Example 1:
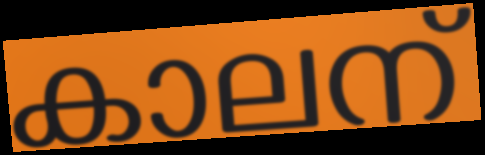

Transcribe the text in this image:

കാലന്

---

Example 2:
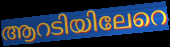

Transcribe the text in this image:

ആറടിയിലേറെ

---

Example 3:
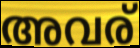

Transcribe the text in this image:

അവര്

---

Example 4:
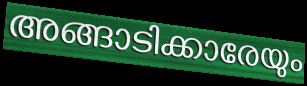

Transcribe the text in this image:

അങ്ങാടിക്കാരേയും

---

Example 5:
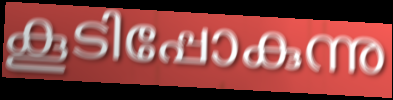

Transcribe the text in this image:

കൂടിപ്പോകുന്നു